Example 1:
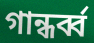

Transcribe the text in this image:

গান্ধর্ব্ব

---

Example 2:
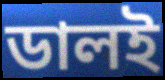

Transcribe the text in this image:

ডালই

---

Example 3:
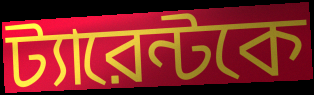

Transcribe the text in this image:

ট্যারেন্টকে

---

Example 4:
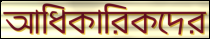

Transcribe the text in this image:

আধিকারিকদের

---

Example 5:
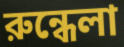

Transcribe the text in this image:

রুন্ধেলা